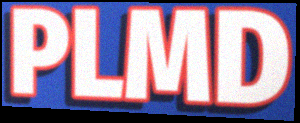
PLMD